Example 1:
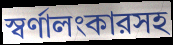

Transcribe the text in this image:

স্বর্ণালংকারসহ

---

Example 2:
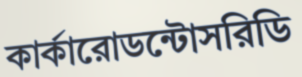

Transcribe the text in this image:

কার্কারোডন্টোসরিডি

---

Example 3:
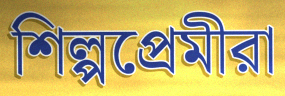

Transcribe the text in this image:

শিল্পপ্রেমীরা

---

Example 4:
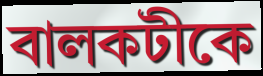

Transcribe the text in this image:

বালকটীকে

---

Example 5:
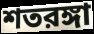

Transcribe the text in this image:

শতরঙ্গা